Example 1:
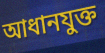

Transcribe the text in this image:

আধানযুক্ত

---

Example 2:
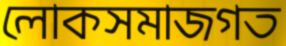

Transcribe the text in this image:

লোকসমাজগত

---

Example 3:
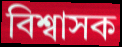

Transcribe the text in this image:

বিশ্বাসক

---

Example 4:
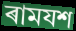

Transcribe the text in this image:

ৰামযশ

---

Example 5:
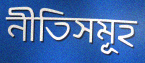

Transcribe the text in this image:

নীতিসমূহ